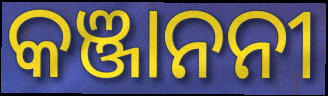
କଞ୍ଜାନନୀ